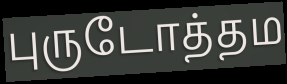
புருடோத்தம